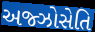
અજ્ઝોસેતિ